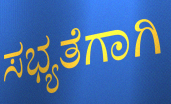
ಸಭ್ಯತೆಗಾಗಿ